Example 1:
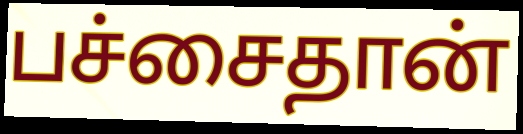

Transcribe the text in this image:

பச்சைதான்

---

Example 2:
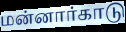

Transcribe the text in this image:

மன்னார்காடு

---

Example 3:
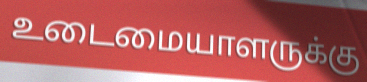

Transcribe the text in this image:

உடைமையாளருக்கு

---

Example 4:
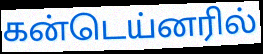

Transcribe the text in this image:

கன்டெய்னரில்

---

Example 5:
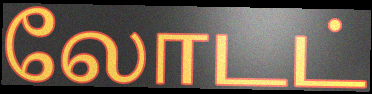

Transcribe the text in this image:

லோடட்